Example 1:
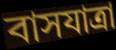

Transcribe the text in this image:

বাসযাত্রা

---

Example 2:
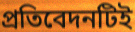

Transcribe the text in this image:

প্রতিবেদনটিই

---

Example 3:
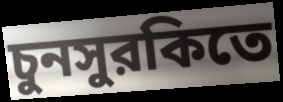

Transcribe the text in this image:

চুনসুরকিতে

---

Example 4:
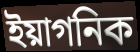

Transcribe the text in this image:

ইয়াগনিক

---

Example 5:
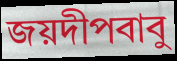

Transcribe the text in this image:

জয়দীপবাবু